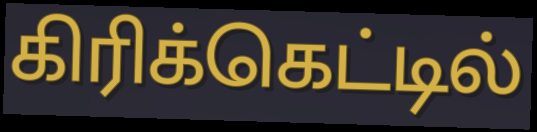
கிரிக்கெட்டில்